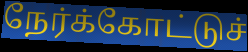
நேர்க்கோட்டுச்